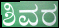
ಶಿವರ